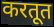
करतूत